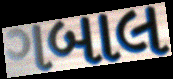
ગબાલ